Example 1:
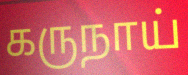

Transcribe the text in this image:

கருநாய்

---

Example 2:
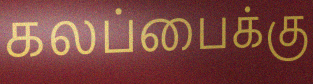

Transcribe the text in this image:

கலப்பைக்கு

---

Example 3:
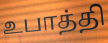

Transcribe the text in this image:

உபாத்தி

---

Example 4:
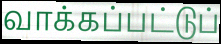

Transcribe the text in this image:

வாக்கப்பட்டுப்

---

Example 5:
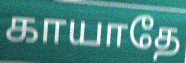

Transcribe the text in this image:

காயாதே